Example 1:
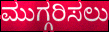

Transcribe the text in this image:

ಮುಗ್ಗರಿಸಲು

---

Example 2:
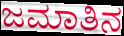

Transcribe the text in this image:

ಜಮಾತಿನ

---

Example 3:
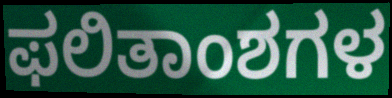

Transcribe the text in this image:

ಫಲಿತಾಂಶಗಳ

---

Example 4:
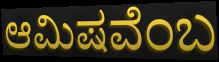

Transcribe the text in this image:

ಆಮಿಷವೆಂಬ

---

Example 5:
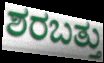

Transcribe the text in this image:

ಶರಬತ್ತು